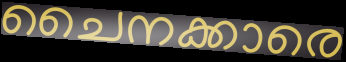
ചൈനക്കാരെ